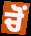
ਚੋਂ